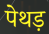
पेथड़